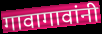
गावागावांनी